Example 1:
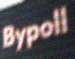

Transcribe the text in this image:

Bypoll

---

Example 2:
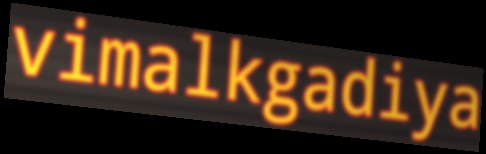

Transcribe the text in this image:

vimalkgadiya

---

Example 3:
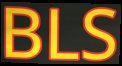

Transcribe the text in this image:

BLS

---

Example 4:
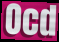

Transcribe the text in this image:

Ocd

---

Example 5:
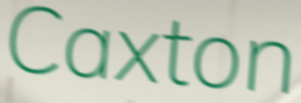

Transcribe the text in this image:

Caxton